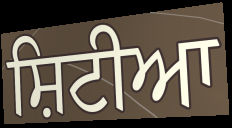
ਸ਼ਿਟੀਆ